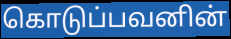
கொடுப்பவனின்